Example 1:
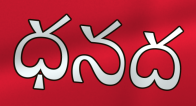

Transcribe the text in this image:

ధనద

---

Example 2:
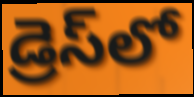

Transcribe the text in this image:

డ్రెస్‌లో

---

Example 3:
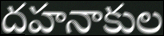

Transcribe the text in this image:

దహనాకుల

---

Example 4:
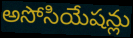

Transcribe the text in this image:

అసోసియేషన్లు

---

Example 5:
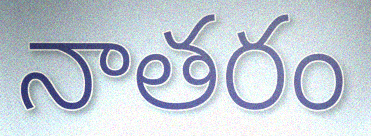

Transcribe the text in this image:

నాతరం